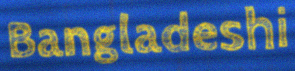
Bangladeshi